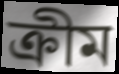
ক্ৰীম